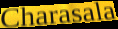
Charasala